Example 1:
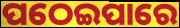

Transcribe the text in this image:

ପଠେଇପାରେ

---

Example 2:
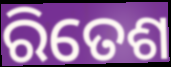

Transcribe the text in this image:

ରିତେଶ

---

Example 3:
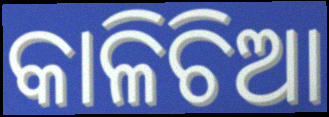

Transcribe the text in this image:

କାଳିଚିଆ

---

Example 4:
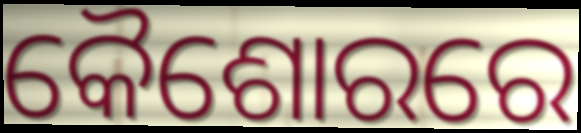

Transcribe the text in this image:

କୈଶୋରରେ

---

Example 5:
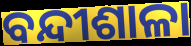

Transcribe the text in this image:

ବନ୍ଦୀଶାଳା